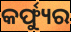
କର୍ଫ୍ୟୁର